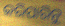
କରିପାରିନୁ